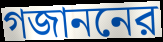
গজাননের